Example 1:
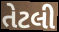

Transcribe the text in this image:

તેટલી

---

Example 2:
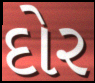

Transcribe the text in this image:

દોર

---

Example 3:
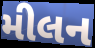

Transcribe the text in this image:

મીલન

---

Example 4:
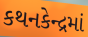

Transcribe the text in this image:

કથનકેન્દ્રમાં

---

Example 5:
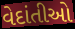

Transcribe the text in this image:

વેદાંતીઓ